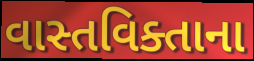
વાસ્તવિક્તાના